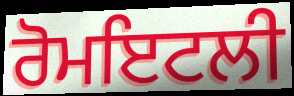
ਰੋਮਇਟਲੀ